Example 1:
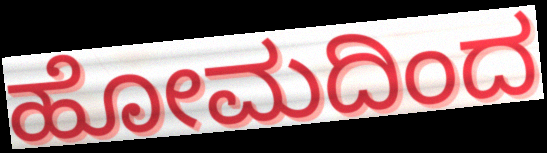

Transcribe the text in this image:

ಹೋಮದಿಂದ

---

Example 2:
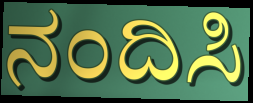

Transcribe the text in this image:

ನಂದಿಸಿ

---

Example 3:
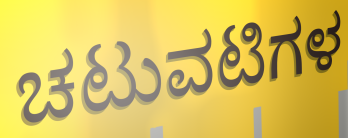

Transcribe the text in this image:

ಚಟುವಟಿಗಳ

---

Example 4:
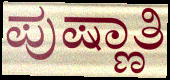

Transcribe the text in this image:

ಪುಷ್ಣಾತಿ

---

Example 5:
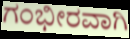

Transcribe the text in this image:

ಗಂಭೀರವಾಗಿ